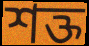
শক্ত